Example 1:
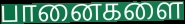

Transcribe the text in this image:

பானைகளை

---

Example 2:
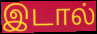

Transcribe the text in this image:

இடால்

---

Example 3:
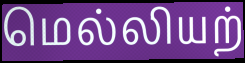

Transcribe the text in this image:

மெல்லியற்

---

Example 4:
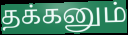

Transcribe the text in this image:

தக்கனும்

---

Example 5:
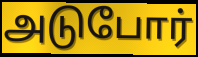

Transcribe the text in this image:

அடுபோர்